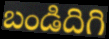
బండిదిగి